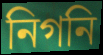
নিগনি